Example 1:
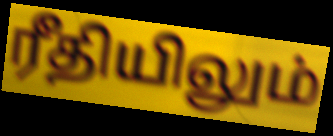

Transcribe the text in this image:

ரீதியிலும்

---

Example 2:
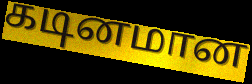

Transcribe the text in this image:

கடினமான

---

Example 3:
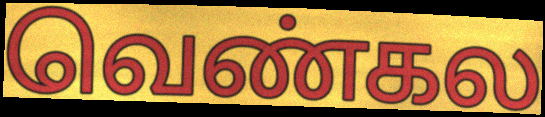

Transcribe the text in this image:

வெண்கல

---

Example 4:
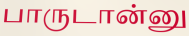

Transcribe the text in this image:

பாருடான்னு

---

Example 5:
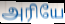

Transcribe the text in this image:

அரியே